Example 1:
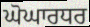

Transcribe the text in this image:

ਘੋਘਾਰਧਰ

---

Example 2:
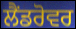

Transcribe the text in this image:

ਲੈਂਡਰੋਵਰ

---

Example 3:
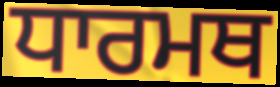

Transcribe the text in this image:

ਧਾਰਮਥ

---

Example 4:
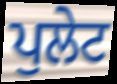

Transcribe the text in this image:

ਪੁਲੇਟ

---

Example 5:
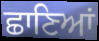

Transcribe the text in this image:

ਛਾਣਿਆਂ